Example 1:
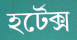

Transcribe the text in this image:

হর্টেক্স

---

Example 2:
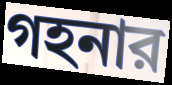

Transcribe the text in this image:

গহনার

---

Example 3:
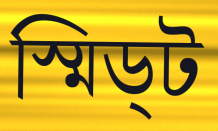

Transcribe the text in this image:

স্মিড্ট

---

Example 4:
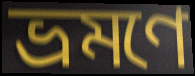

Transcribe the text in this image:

ভ্রমণে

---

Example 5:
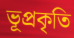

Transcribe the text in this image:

ভূপ্রকৃতি